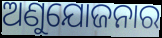
ଅଣୁଯୋଜନାର